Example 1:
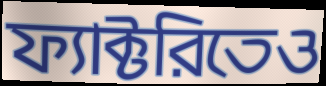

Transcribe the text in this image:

ফ্যাক্টরিতেও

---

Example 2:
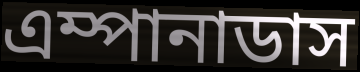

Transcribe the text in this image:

এম্পানাডাস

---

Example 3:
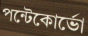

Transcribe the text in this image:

পন্টেকোর্ভো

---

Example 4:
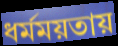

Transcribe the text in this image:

ধর্মময়তায়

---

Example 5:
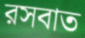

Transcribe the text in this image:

রসবাত